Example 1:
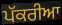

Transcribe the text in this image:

ਪੱਕਰੀਆ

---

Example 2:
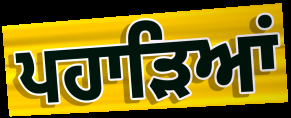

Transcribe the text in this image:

ਪਹਾੜਿਆਂ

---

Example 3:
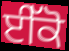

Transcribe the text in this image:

ਈੱਕੋ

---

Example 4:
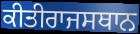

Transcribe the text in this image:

ਕੀਤੀਰਾਜਸਥਾਨ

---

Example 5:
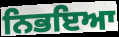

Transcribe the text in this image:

ਨਿਭਇਆ